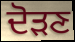
ਦੋੜਣ